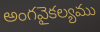
అంగవైకల్యము